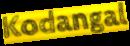
Kodangal